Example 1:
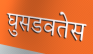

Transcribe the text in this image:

घुसडवतेस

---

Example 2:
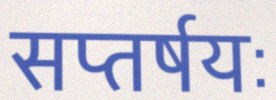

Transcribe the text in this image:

सप्तर्षयः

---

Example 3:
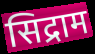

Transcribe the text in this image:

सिद्राम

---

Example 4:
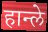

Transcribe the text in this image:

हान्ले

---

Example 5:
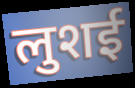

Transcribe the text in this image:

लुशई